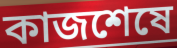
কাজশেষে